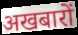
अखबारों